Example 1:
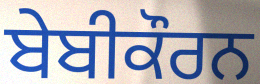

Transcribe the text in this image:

ਬੇਬੀਕੌਰਨ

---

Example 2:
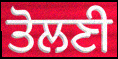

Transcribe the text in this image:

ਤੋਲਣੀ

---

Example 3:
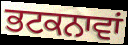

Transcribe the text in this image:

ਭਟਕਨਾਵਾਂ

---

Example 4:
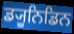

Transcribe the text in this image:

ਡ੍ਯੂਨਿਡਿਨ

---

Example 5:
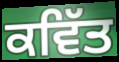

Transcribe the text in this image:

ਕਵਿੱਤ